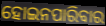
ହୋଇନପାରିବାର